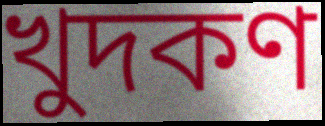
খুদকণ